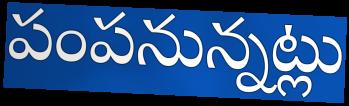
పంపనున్నట్లు